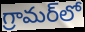
గ్రామర్‌లో